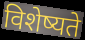
विशेष्यते